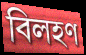
বিলহণ